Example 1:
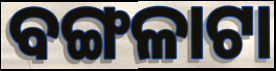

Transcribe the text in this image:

ବଙ୍ଗଳାଟା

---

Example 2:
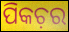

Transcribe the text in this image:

ପିକଚ଼ର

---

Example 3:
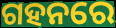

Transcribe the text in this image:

ଗହନରେ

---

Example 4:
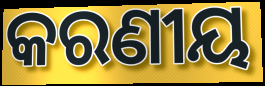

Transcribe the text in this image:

କରଣୀୟ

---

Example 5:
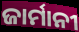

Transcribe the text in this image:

ଜାର୍ମାନୀ